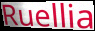
Ruellia